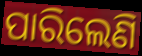
ପାରିଲେଣି